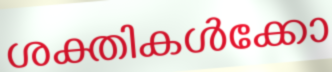
ശക്തികൾക്കോ